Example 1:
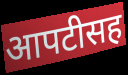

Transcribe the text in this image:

आपटीसह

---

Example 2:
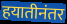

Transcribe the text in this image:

हयातीनंतर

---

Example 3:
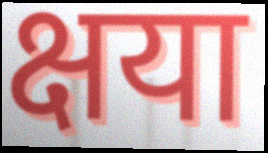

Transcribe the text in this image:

क्षया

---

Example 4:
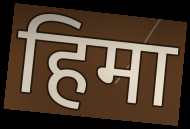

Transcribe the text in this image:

हिमा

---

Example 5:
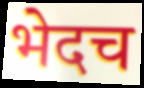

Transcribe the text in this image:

भेदच